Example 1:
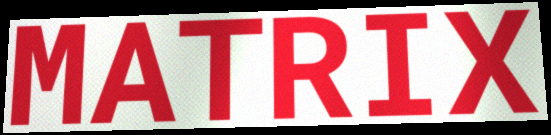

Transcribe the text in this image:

MATRIX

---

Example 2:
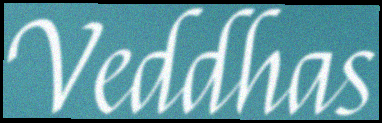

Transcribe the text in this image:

Veddhas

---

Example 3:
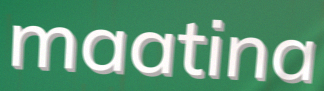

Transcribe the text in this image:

maatina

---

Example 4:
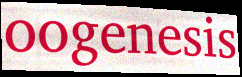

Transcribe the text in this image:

oogenesis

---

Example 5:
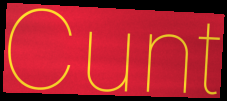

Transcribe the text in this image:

Cunt